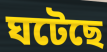
ঘটেছে